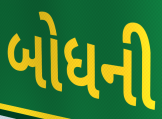
બોધની